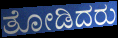
ತೋಡಿದರು